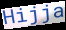
Hijja